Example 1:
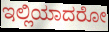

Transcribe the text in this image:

ಇಲ್ಲಿಯಾದರೋ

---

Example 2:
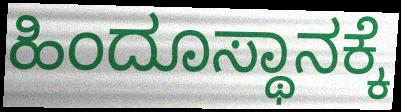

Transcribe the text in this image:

ಹಿಂದೂಸ್ಥಾನಕ್ಕೆ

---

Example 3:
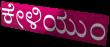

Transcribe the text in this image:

ಕೇಳಿಯುಂ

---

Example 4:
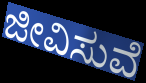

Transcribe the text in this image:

ಜೀವಿಸುವೆ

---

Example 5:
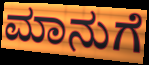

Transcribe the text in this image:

ಮಾನುಗೆ